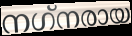
നഗ്‌നരായ